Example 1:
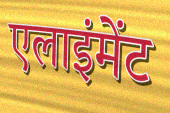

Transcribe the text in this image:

एलाइंमेंट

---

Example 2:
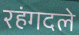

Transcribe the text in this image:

रहंगदले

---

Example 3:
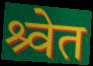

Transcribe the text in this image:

श्र्वेत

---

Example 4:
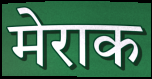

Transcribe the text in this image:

मेराक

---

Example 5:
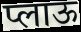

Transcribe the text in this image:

प्लाऊ